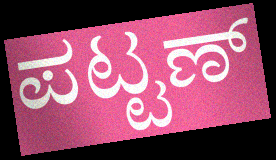
ಪಟ್ಟಣ್